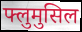
फ्लुमुसिल